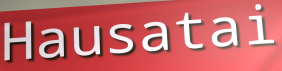
Hausatai